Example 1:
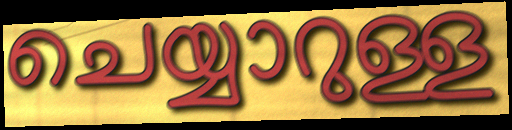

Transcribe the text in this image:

ചെയ്യാറുള്ള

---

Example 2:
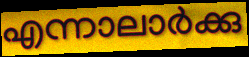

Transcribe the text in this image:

എന്നാലാർക്കു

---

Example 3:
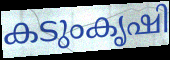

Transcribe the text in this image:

കടുംകൃഷി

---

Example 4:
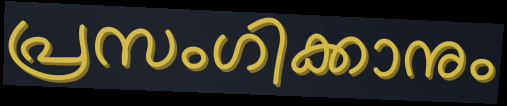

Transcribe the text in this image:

പ്രസംഗിക്കാനും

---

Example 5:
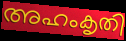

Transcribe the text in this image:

അഹംകൃതി